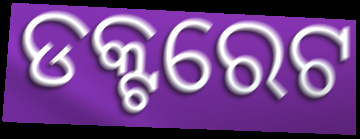
ଡକ୍ଟରେଟ